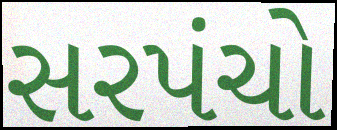
સરપંચો